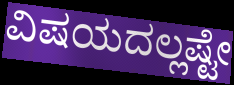
ವಿಷಯದಲ್ಲಷ್ಟೇ